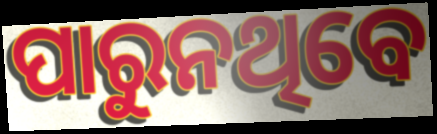
ପାରୁନଥିବେ